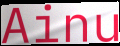
Ainu